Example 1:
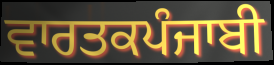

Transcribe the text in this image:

ਵਾਰਤਕਪੰਜਾਬੀ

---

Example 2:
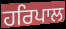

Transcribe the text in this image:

ਹਰਿਪਾਲ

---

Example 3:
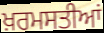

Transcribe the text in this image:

ਖ਼ਰਮਸਤੀਆਂ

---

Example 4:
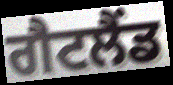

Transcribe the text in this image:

ਗੈਟਲੈਂਡ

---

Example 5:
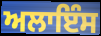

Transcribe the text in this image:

ਅਲਾਇੰਸ